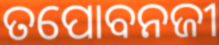
ତପୋବନଜୀ